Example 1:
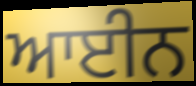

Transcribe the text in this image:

ਆਈਨ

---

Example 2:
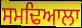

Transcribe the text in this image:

ਸਮਢਿਆਲਾ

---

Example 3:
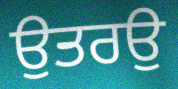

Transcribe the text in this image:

ਉਤਰਉ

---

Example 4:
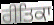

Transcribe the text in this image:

ਰੀਤਿਕਾ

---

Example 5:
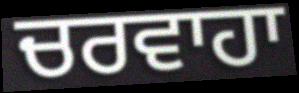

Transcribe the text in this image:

ਚਰਵਾਹਾ